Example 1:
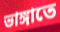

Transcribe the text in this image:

ভাঙ্গাতে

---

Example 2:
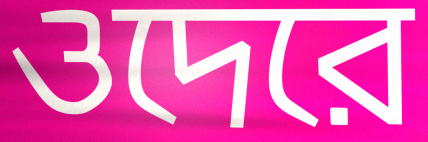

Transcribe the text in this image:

ওদেরে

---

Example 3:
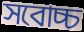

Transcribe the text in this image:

সবোচ্চ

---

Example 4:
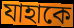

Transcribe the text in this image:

যাহাকে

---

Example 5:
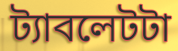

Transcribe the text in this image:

ট্যাবলেটটা